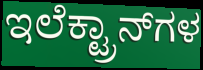
ಇಲೆಕ್ಟ್ರಾನ್‍ಗಳ